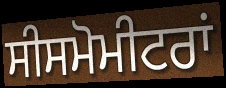
ਸੀਸਮੋਮੀਟਰਾਂ